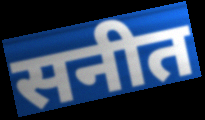
सनीत